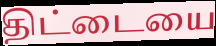
திட்டையை